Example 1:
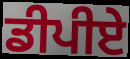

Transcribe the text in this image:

ਡੀਪੀਏ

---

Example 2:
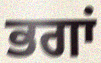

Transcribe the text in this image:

ਭਗਾਂ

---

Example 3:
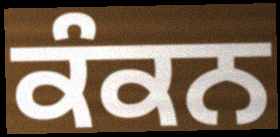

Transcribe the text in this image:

ਕੰਕਨ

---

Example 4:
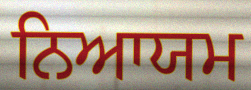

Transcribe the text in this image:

ਨਿਆਯਮ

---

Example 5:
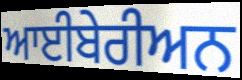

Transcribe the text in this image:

ਆਈਬੇਰੀਅਨ